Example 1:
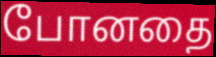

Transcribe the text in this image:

போனதை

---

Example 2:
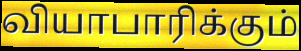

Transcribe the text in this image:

வியாபாரிக்கும்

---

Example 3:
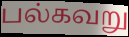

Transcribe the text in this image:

பல்கவறு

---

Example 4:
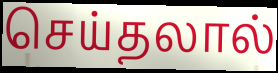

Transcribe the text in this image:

செய்தலால்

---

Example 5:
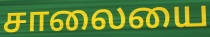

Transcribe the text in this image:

சாலையை